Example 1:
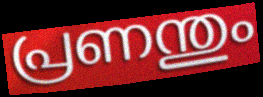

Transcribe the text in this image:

പ്രണന്തും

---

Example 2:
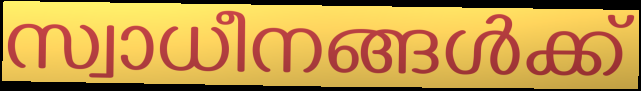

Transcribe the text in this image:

സ്വാധീനങ്ങൾക്ക്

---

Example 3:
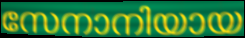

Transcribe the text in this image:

സേനാനിയായ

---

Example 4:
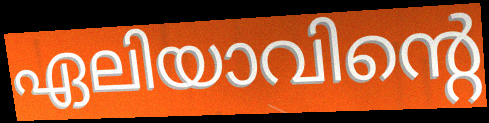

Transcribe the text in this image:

ഏലിയാവിന്റെ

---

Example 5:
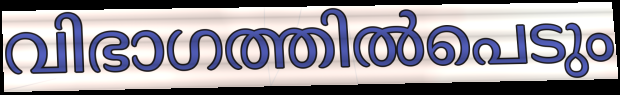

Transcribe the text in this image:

വിഭാഗത്തിൽപെടും